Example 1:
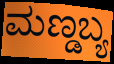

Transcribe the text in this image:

ಮಣ್ಡಬ್ಯ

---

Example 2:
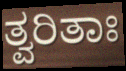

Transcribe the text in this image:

ತ್ವರಿತಾಃ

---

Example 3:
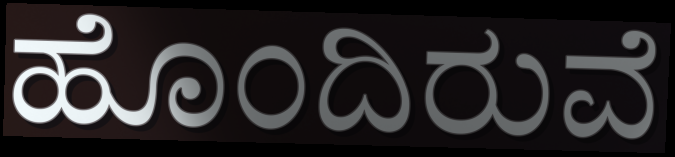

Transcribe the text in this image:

ಹೊಂದಿರುವೆ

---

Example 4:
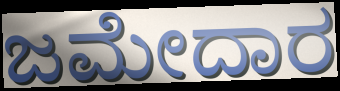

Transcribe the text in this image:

ಜಮೇದಾರ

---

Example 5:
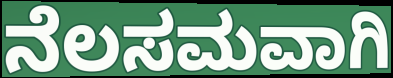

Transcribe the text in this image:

ನೆಲಸಮವಾಗಿ